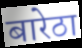
बारेठा